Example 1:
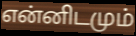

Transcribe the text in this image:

என்னிடமும்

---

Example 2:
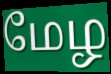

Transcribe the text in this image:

மேழ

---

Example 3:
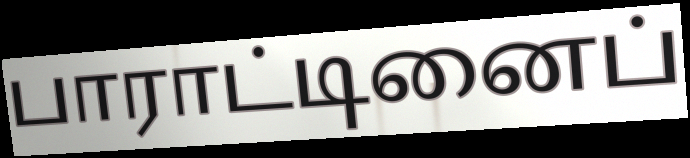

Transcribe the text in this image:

பாராட்டினைப்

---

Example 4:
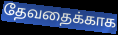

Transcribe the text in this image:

தேவதைக்காக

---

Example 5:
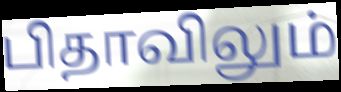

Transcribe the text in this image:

பிதாவிலும்